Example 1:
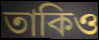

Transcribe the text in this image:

তাকিও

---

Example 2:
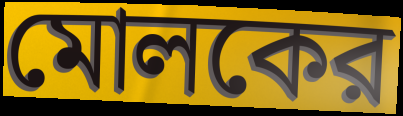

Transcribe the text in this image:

মোলকের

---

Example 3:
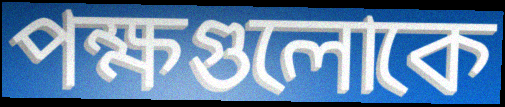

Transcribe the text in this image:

পক্ষগুলোকে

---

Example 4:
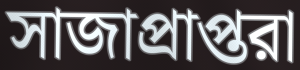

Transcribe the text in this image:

সাজাপ্রাপ্তরা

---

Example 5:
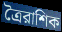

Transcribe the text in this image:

ত্রৈরাশিক